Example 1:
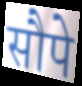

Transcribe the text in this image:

सौपे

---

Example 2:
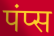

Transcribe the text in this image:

पंप्स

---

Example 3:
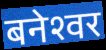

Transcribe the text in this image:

बनेश्वर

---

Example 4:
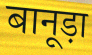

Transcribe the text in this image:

बानूड़ा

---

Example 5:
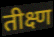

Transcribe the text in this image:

तीक्ष्ण